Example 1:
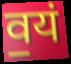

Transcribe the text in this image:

व॒यं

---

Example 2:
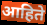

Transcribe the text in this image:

आहिते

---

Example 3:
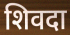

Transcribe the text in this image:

शिवदा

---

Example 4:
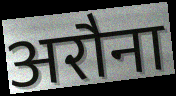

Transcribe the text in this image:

अरौना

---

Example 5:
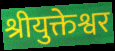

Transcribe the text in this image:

श्रीयुक्तेश्वर